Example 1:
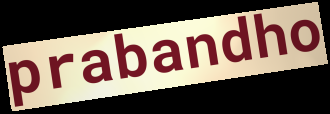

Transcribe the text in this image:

prabandho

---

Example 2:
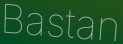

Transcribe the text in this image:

Bastan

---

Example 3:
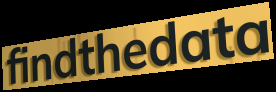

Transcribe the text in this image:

findthedata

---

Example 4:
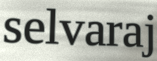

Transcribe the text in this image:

selvaraj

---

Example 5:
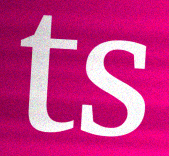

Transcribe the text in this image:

ts